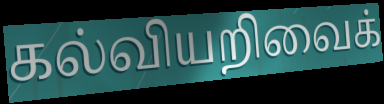
கல்வியறிவைக்